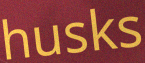
husks